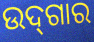
ଉଦ୍‌ଗାର